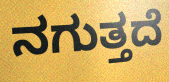
ನಗುತ್ತದೆ